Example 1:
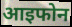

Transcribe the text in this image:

आइफोन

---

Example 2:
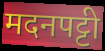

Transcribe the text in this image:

मदनपट्टी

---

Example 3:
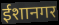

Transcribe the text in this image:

ईशानगर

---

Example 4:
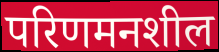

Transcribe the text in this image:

परिणमनशील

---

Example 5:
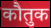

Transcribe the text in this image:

कौतुक